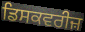
ਡਿਸਕਵਰੀਜ਼